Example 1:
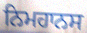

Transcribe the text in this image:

ਨਿਮਹਾਨਸ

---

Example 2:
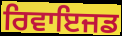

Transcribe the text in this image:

ਰਿਵਾਇਜਡ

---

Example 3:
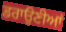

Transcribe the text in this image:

ਡਰਾਉਣੀਆਂ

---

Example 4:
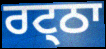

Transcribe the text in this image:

ਰਟ੍ਠਾ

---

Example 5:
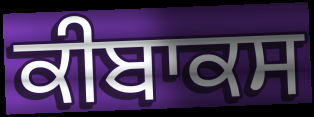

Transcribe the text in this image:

ਕੀਬਾਕਸ